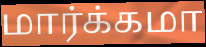
மார்க்கமா